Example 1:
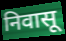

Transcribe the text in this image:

निवासू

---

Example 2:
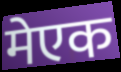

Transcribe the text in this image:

मेएक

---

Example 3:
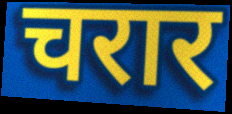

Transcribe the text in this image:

चरार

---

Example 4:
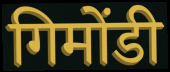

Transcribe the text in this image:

गिमोंडी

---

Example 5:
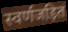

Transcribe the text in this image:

स्वर्णजड़ित